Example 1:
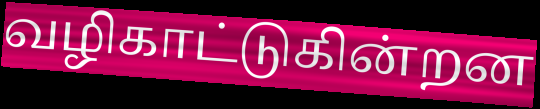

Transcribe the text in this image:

வழிகாட்டுகின்றன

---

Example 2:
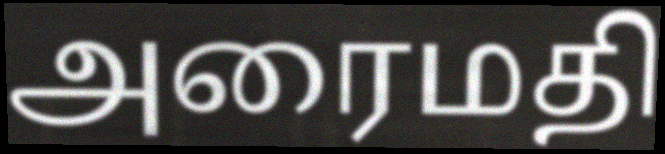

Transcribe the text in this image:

அரைமதி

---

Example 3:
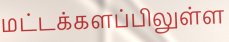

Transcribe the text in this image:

மட்டக்களப்பிலுள்ள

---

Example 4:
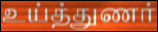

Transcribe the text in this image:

உய்த்துணர்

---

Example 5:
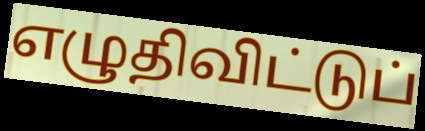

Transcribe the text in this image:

எழுதிவிட்டுப்